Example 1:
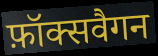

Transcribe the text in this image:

फ़ॉक्सवैगन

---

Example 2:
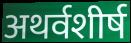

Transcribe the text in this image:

अथर्वशीर्ष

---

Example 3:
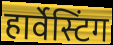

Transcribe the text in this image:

हार्वेस्टिंग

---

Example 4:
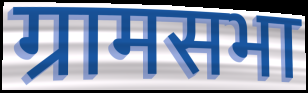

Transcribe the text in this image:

ग्रामसभा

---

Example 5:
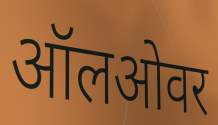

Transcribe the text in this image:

ऑलओवर